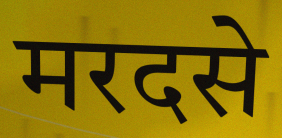
मरदसे